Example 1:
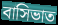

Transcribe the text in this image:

বাসিভাত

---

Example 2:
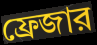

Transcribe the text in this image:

ফ্রেজার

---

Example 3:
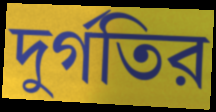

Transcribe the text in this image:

দুর্গতির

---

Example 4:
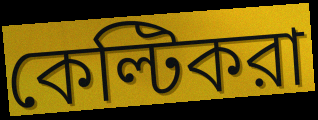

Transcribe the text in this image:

কেল্টিকরা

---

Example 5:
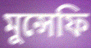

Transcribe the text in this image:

মুন্সেফি